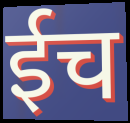
ईच